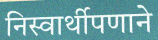
निस्वार्थीपणाने